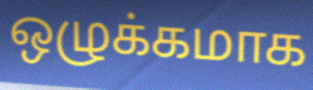
ஒழுக்கமாக